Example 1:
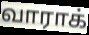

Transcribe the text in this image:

வாராக்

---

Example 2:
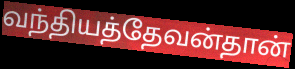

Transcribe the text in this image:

வந்தியத்தேவன்தான்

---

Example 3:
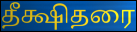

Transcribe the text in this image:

தீக்ஷிதரை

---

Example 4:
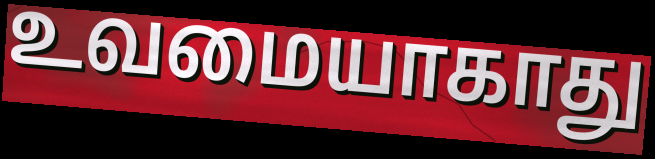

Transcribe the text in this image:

உவமையாகாது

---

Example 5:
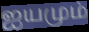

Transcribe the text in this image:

ஐயமும்